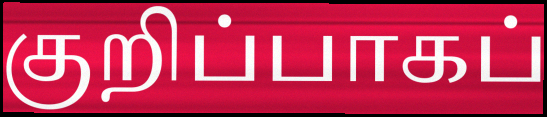
குறிப்பாகப்